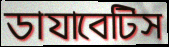
ডাযাবেটিস